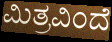
ಮಿತ್ರವಿಂದೆ